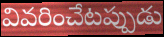
వివరించేటప్పుడు